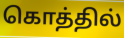
கொத்தில்